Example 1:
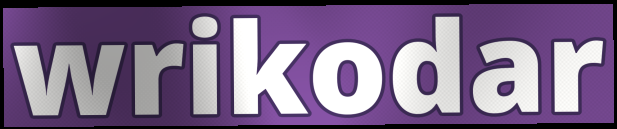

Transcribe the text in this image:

wrikodar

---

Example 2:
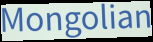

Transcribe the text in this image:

Mongolian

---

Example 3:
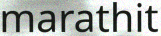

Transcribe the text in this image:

marathit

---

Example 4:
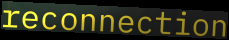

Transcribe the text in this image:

reconnection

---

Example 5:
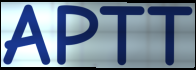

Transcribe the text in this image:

APTT